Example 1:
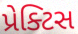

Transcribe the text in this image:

પ્રેક્ટિસ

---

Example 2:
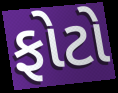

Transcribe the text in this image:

ફોટો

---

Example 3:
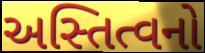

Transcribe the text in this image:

અસ્તિત્વનો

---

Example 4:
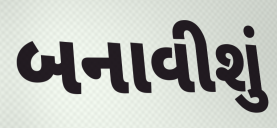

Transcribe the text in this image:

બનાવીશું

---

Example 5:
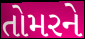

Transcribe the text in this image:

તોમરને